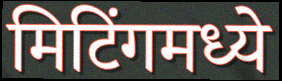
मिटिंगमध्ये